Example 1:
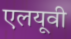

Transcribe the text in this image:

एलयूवी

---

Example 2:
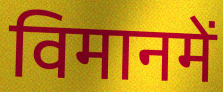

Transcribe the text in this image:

विमानमें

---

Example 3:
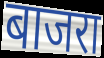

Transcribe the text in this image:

बाजरा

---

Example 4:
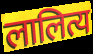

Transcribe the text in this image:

लालित्य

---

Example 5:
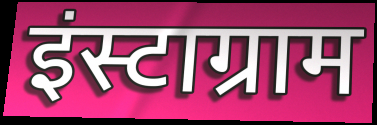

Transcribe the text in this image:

इंस्टाग्राम